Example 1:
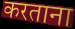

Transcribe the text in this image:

करताना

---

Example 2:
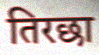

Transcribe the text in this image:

तिरछा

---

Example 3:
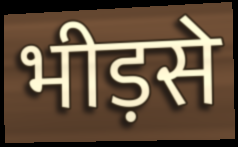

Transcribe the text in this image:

भीड़से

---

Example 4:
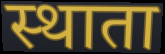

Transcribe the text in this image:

स्थाता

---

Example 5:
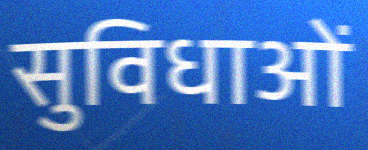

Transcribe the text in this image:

सुविधाओें